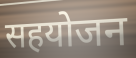
सहयोजन